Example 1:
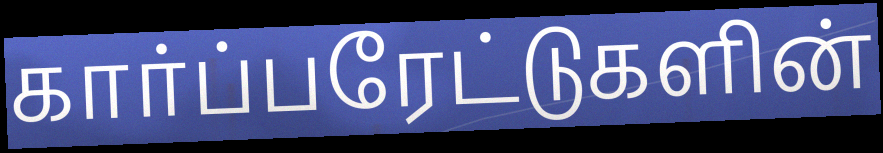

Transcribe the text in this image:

கார்ப்பரேட்டுகளின்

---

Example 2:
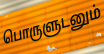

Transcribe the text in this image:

பொருளுடனும்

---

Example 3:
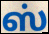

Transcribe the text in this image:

ஸ்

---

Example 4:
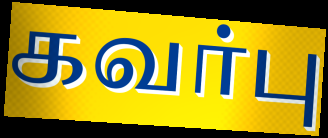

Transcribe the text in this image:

கவர்பு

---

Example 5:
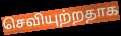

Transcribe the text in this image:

செவியுற்றதாக